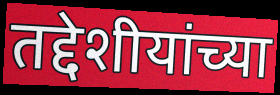
तद्देशीयांच्या